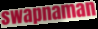
swapnaman